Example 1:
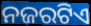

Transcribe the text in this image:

ନଜରଟିଏ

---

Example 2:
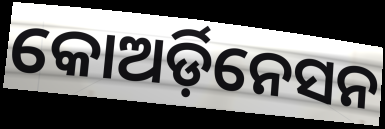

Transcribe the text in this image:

କୋଅର୍ଡ଼ିନେସନ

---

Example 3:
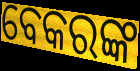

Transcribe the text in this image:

ବେକରଙ୍କ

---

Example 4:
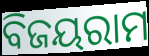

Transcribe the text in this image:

ବିଜୟରାମ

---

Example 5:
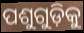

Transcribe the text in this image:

ପଶୁଗୁଡ଼ିକୁ